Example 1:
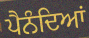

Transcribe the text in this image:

ਪੈਨੰਦਿਆਂ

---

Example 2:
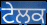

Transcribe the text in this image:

ਟੇਲਕ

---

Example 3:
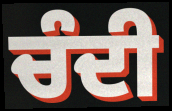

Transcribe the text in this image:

ਚੰਦੀ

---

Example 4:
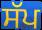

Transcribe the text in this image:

ਸੱਪ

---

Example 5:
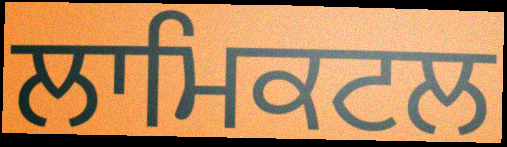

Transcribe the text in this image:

ਲਾਮਿਕਟਲ